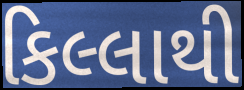
કિલ્લાથી